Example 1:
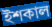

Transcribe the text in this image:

ইশকাল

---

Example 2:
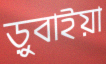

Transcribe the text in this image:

ড়ুবাইয়া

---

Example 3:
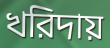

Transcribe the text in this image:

খরিদায়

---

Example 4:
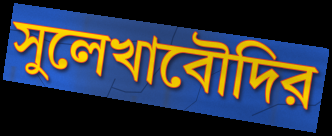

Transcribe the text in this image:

সুলেখাবৌদির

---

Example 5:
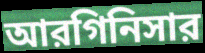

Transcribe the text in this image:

আরগিনিসার